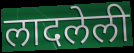
लादलेली